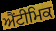
ਐਂਟੀਮਿਕ